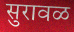
सुरावळ